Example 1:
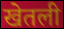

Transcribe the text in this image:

खेतली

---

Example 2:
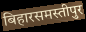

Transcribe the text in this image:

बिहारसमस्तीपुर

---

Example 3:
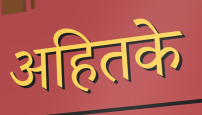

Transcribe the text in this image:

अहितके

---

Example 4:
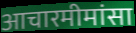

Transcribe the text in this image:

आचारमीमांसा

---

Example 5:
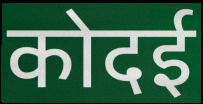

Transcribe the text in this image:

कोदई